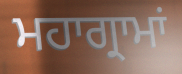
ਮਹਾਗ੍ਰਾਮਾਂ